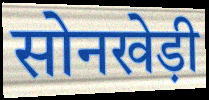
सोनखेड़ी